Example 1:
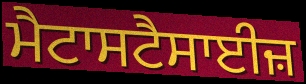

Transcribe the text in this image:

ਮੈਟਾਸਟੈਸਾਈਜ਼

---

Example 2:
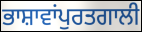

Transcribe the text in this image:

ਭਾਸ਼ਾਵਾਂਪੁਰਤਗਾਲੀ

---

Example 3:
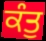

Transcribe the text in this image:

ਕੰਤੁ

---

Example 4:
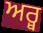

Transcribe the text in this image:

ਅਰ੍ਥ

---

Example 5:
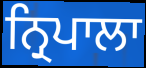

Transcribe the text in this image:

ਨ੍ਰਿਪਾਲਾ